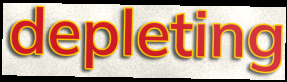
depleting